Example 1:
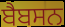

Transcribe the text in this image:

ਬੈਬਸਨ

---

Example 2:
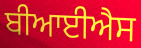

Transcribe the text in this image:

ਬੀਆਈਐਸ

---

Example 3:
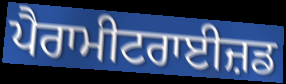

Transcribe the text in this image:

ਪੈਰਾਮੀਟਰਾਈਜ਼ਡ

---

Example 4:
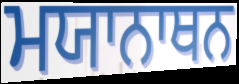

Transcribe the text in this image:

ਮਯਾਨਾਥਨ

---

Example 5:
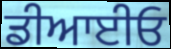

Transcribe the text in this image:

ਡੀਆਈਓ